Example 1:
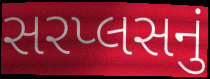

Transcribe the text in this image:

સરપ્લસનું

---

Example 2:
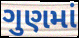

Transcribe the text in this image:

ગુણમાં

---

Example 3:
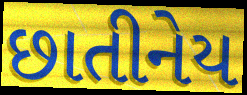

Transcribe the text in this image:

છાતીનેય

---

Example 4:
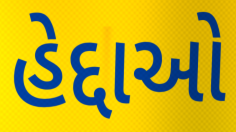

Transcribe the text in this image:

હેદ્દાઓ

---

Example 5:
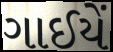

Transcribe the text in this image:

ગાઈયેં